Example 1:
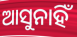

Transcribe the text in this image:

ଆସୁନାହିଁ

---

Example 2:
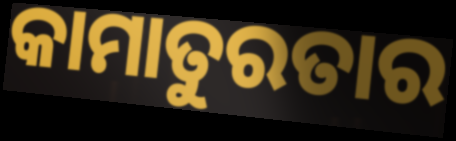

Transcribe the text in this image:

କାମାତୁରତାର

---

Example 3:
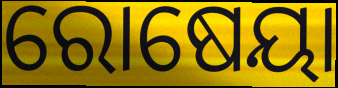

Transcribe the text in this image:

ରୋଷେୟା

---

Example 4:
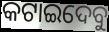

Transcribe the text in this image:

କଟାଇଦେବୁ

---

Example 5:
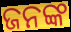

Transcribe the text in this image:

ଜନଙ୍କ